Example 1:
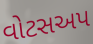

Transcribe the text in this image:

વોટસઅપ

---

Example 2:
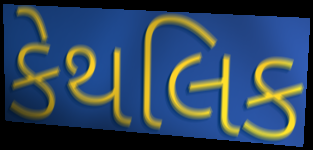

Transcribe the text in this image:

કેથલિક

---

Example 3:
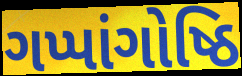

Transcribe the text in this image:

ગપ્પાંગોષ્ઠિ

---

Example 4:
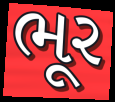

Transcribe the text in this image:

ભૂર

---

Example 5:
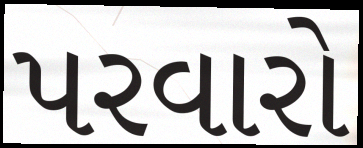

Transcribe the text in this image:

પરવારો